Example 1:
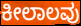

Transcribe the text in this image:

ಕೀಲಾಲವು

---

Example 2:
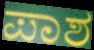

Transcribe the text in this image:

ಪಾಶ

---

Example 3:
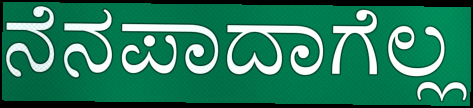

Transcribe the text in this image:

ನೆನಪಾದಾಗೆಲ್ಲ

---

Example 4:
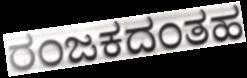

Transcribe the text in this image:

ರಂಜಕದಂತಹ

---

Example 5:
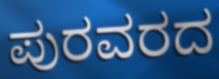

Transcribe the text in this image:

ಪುರವರದ